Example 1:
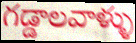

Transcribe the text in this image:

గడ్డాలవాళ్ళు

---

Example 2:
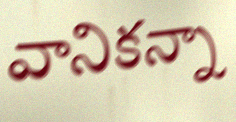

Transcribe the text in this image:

వానికన్నా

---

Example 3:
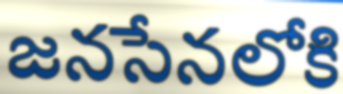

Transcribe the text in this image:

జనసేనలోకి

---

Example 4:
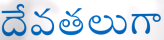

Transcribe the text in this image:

దేవతలుగా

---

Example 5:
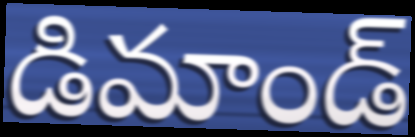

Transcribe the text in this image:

డిమాండ్